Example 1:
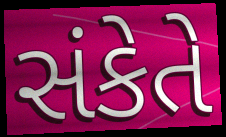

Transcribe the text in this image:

સંકેતે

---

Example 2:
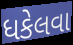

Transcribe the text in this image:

ધકેલવા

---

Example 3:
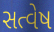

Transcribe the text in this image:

સત્વેષ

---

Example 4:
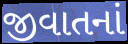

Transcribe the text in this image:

જીવાતનાં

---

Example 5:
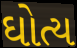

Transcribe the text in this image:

ઘોત્ય